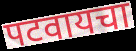
पटवायचा